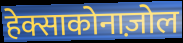
हेक्साकोनाज़ोल